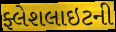
ફ્લેશલાઇટની